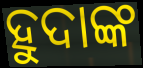
ହୁଦାଙ୍କ